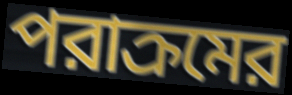
পরাক্রমের